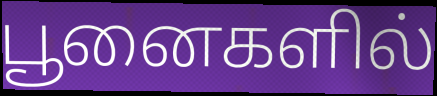
பூனைகளில்